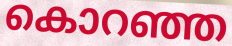
കൊറഞ്ഞ